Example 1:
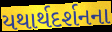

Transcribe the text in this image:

યથાર્થદર્શનના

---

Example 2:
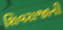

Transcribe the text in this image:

શિવરાજાની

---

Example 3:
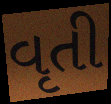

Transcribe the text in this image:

વૃતી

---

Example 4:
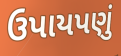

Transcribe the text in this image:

ઉપાયપણું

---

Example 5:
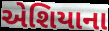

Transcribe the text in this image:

એશિયાના